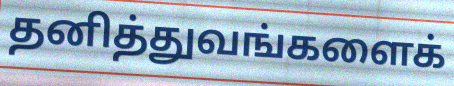
தனித்துவங்களைக்